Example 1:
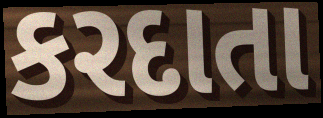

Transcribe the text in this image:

કરદાતા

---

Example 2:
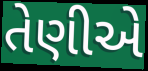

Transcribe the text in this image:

તેણીએ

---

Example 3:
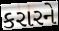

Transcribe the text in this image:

કરારને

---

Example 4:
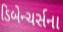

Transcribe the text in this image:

ડિબેન્ચર્સના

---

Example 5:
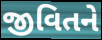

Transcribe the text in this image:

જીવિતને